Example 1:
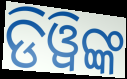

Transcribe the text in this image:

ଡିୱିଙ୍କ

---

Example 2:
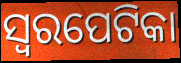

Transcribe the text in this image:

ସ୍ୱରପେଟିକା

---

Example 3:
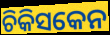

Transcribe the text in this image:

ଚିକିସକେନ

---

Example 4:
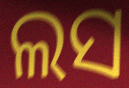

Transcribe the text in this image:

ଲସ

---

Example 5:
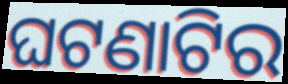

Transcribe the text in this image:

ଘଟଣାଟିର